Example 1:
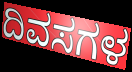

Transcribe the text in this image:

ದಿವಸಗಳ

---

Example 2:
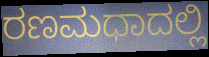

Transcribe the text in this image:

ರಣಮಧಾದಲ್ಲಿ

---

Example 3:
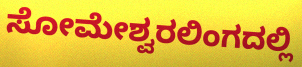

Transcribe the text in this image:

ಸೋಮೇಶ್ವರಲಿಂಗದಲ್ಲಿ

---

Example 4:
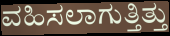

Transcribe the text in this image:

ವಹಿಸಲಾಗುತ್ತಿತ್ತು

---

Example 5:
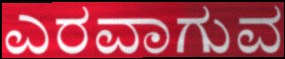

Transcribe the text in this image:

ಎರವಾಗುವ